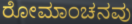
ರೋಮಾಂಚನವು